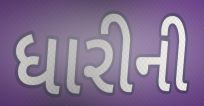
ધારીની